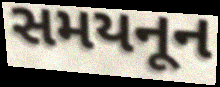
સમયનૂન